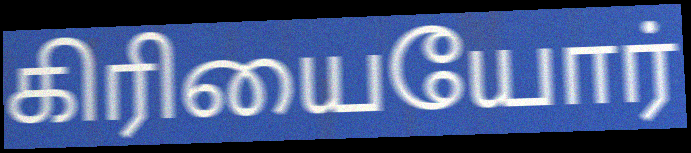
கிரியையோர்